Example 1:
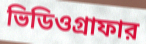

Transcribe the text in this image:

ভিডিওগ্রাফার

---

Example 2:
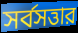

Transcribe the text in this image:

সর্বসত্তার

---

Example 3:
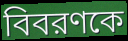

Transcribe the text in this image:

বিবরণকে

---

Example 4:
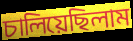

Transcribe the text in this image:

চালিয়েছিলাম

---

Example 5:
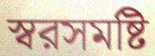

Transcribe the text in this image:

স্বরসমষ্টি